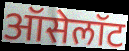
ऑसेलॉट